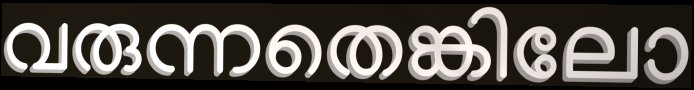
വരുന്നതെങ്കിലോ